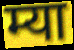
म्या